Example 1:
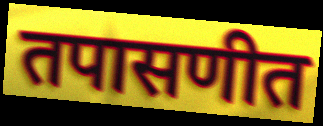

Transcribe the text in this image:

तपासणीत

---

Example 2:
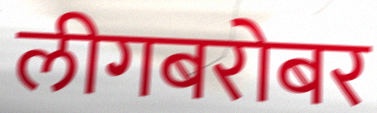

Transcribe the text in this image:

लीगबरोबर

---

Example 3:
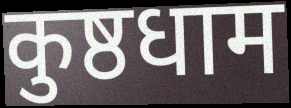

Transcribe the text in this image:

कुष्ठधाम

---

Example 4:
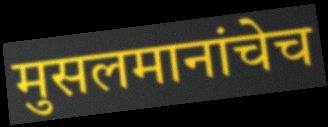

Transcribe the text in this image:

मुसलमानांचेच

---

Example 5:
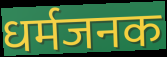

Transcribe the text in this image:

धर्मजनक